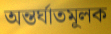
অন্তর্ঘাতমূলক